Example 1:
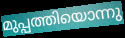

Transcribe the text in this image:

മുപ്പത്തിയൊന്നു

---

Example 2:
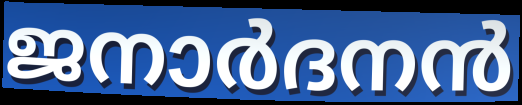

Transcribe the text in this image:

ജനാർദനൻ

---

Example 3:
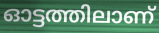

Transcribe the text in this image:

ഓട്ടത്തിലാണ്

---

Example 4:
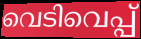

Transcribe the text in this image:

വെടിവെപ്പ്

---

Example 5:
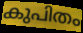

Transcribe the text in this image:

കുപിതം